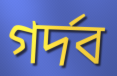
গর্দব